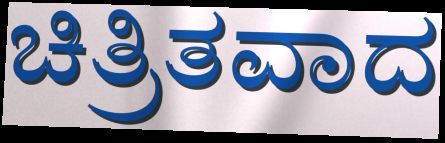
ಚಿತ್ರಿತವಾದ